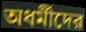
অধর্মীদের